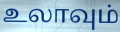
உலாவும்